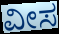
ವೀಸ